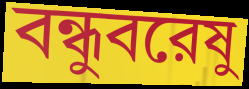
বন্ধুবরেষু